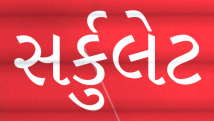
સર્કુલેટ